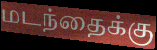
மடந்தைக்கு